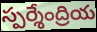
స్పర్శేంద్రియ